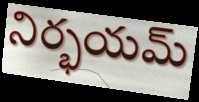
నిర్భయమ్